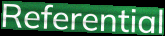
Referential